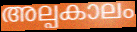
അല്പകാലം